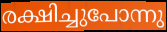
രക്ഷിച്ചുപോന്നു